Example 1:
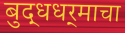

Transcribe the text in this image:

बुद्धधर्माचा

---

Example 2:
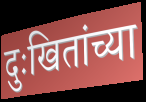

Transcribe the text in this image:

दुःखितांच्या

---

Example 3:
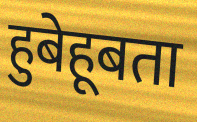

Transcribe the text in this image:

हुबेहूबता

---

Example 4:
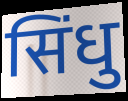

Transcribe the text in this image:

सिंधु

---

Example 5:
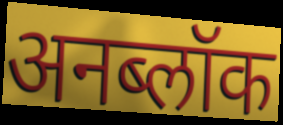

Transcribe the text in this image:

अनब्लॉक